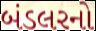
બંડલરનો